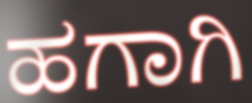
ಹಗಾಗಿ